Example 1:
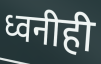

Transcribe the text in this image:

ध्वनीही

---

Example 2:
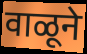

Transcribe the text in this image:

वाळूने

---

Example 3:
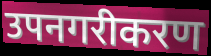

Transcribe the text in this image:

उपनगरीकरण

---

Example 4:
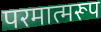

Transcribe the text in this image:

परमात्मरूप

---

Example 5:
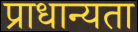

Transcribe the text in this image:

प्राधान्यता